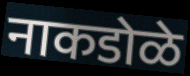
नाकडोळे